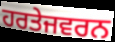
ਹਰਤੇਜਵਰਨ